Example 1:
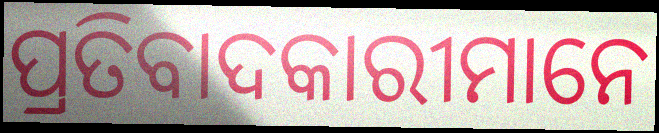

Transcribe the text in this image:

ପ୍ରତିବାଦକାରୀମାନେ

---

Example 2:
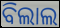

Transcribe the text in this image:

ବିଲାଲ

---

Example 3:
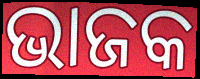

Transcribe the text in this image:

ଭାଜକ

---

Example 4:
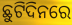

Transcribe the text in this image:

ଛୁଟିଦିନରେ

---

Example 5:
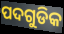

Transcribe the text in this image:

ପଦଗୁଡିକ